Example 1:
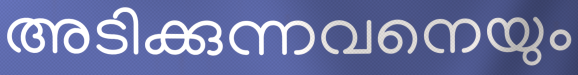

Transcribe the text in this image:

അടിക്കുന്നവനെയും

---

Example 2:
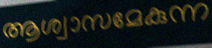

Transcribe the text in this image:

ആശ്വാസമേകുന്ന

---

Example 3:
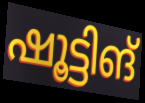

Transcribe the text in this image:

ഷൂട്ടിങ്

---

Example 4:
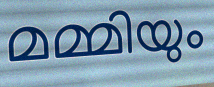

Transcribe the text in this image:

മമ്മിയും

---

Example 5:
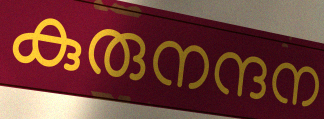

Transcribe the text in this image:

കുരുനന്ദന